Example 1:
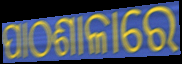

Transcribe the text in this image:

ପାଠଶାଳାରେ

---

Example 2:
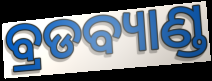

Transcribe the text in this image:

ବ୍ରଡବ୍ୟାଣ୍ଡ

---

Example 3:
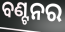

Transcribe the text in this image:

ବଣ୍ଟନର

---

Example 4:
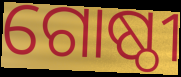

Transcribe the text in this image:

ଗୋଷ୍ଠୀ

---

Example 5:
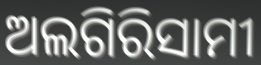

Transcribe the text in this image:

ଅଲଗିରିସାମୀ